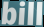
bill